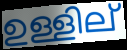
ഉള്ളില്